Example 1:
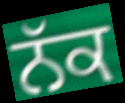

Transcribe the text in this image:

ਨੱਕ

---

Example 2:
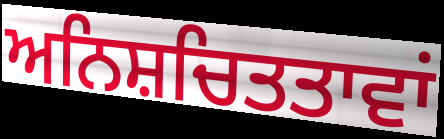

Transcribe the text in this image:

ਅਨਿਸ਼ਚਿਤਤਾਵਾਂ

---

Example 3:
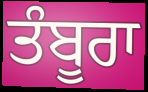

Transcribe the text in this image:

ਤੰਬੂਰਾ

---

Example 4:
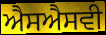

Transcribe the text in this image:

ਐਸਐਸਵੀ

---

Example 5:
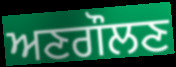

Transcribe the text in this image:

ਅਣਗੌਲਣ